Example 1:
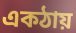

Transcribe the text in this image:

একঠায়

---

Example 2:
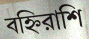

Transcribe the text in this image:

বহ্নিরাশি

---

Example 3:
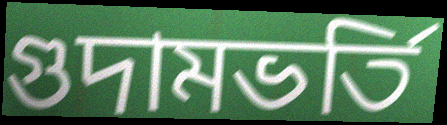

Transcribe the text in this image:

গুদামভর্তি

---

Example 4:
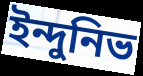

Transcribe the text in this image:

ইন্দুনিভ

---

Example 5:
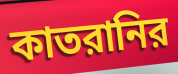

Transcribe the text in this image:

কাতরানির